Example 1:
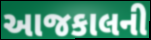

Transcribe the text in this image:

આજકાલની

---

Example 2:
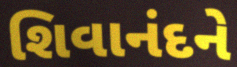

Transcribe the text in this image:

શિવાનંદને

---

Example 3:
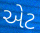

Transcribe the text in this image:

એટ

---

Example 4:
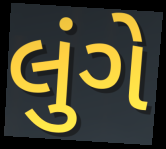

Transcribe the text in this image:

લુંગે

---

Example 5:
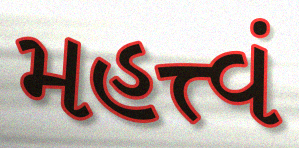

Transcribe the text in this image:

મહત્ત્વં